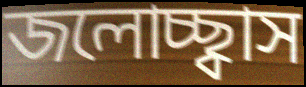
জলোচ্ছ্বাস